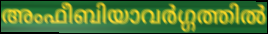
അംഫീബിയാവർഗ്ഗത്തിൽ